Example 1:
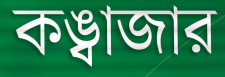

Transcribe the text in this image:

কঙ্বাজার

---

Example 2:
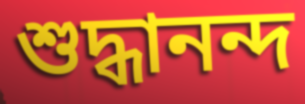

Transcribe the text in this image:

শুদ্ধানন্দ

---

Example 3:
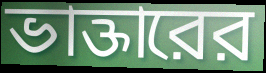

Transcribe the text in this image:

ভাক্তারের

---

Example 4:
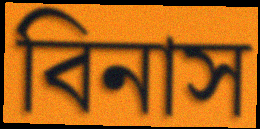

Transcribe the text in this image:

বিনাস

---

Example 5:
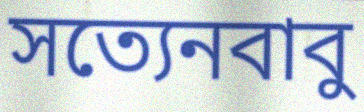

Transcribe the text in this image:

সত্যেনবাবু